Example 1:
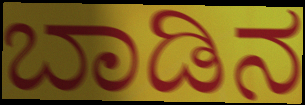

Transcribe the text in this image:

ಬಾಡಿನ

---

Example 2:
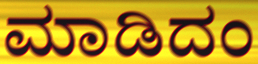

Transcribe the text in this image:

ಮಾಡಿದಂ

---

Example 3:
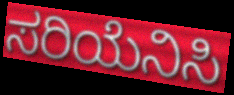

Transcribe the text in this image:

ಸರಿಯೆನಿಸಿ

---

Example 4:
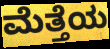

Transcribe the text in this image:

ಮೆತ್ತೆಯ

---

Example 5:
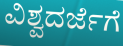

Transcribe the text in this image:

ವಿಶ್ವದರ್ಜೆಗೆ